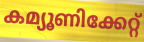
കമ്യൂണിക്കേറ്റ്